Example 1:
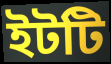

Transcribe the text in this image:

ইটটি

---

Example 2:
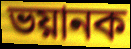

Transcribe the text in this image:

ভয়ানক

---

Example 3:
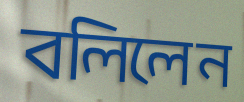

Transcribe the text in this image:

বলিলেন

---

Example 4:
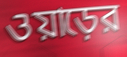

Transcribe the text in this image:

ওয়াড়ের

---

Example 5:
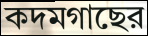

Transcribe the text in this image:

কদমগাছের